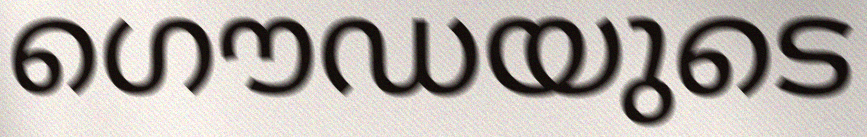
ഗൌഡയുടെ